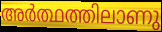
അർത്ഥത്തിലാണു